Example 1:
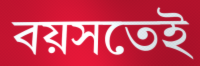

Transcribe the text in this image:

বয়সতেই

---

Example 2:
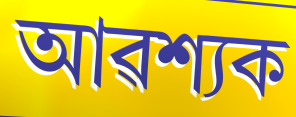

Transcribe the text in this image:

আৱশ্যক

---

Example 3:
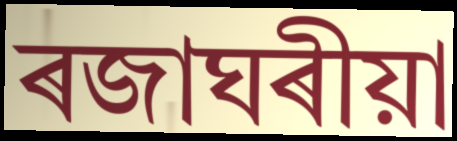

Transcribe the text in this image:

ৰজাঘৰীয়া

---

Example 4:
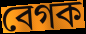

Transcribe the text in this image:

বেগক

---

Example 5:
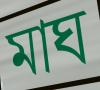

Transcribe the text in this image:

মাঘ